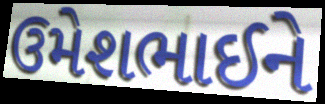
ઉમેશભાઈને